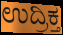
ಉದ್ರಿಕ್ತ